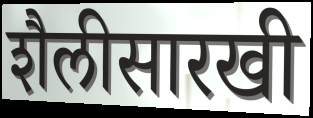
शैलीसारखी